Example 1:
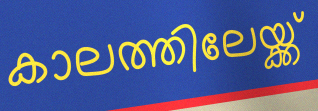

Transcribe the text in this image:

കാലത്തിലേയ്ക്ക്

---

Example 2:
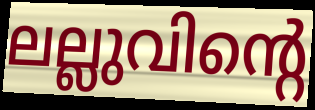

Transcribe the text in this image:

ലല്ലുവിന്റെ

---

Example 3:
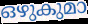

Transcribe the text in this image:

ഒഴുകുമാ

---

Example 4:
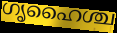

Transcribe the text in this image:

ഗൃഹൈശ്ച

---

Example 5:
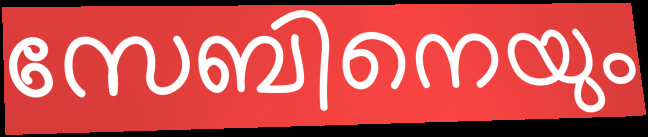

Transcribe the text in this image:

സേബിനെയും